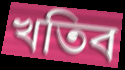
খতিব